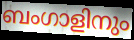
ബംഗാളിനും